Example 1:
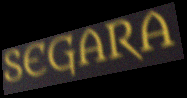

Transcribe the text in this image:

SEGARA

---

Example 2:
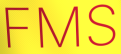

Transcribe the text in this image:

FMS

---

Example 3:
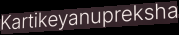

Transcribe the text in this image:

Kartikeyanupreksha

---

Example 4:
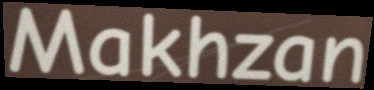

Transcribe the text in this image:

Makhzan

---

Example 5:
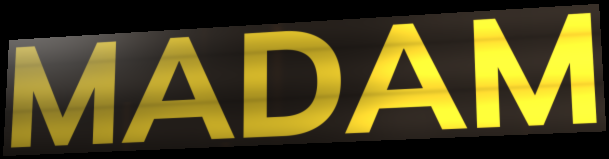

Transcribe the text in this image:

MADAM